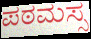
ಪಠಮಸ್ಸ